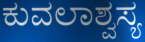
ಕುವಲಾಶ್ವಸ್ಯ